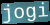
jogi